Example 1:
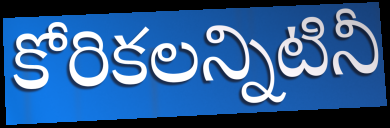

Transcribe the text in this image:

కోరికలన్నిటినీ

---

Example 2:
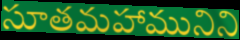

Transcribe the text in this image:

సూతమహామునిని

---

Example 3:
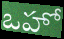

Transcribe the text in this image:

ఒహో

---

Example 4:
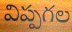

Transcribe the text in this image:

విప్పగల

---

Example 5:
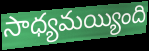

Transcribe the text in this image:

సాధ్యమయ్యింది